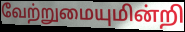
வேற்றுமையுமின்றி